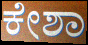
ಕೇಶಾ